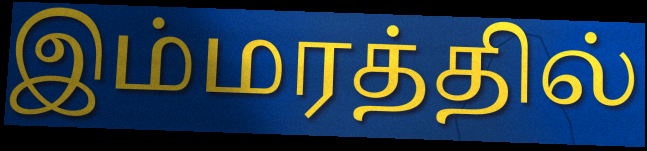
இம்மரத்தில்